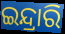
ଇନ୍ଦ୍ରାରି